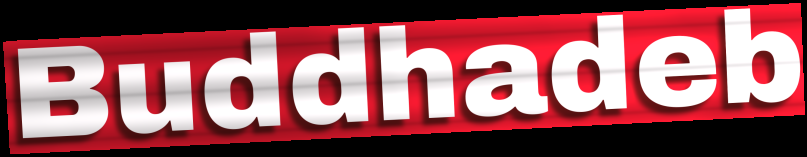
Buddhadeb